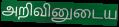
அறிவினுடைய